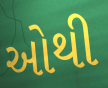
ઓથી